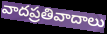
వాదప్రతివాదాలు